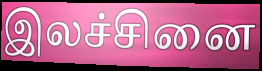
இலச்சினை